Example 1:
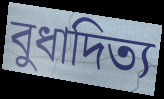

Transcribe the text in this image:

বুধাদিত্য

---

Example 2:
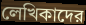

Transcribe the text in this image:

লেখিকাদের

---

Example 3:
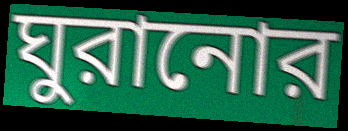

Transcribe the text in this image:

ঘুরানোর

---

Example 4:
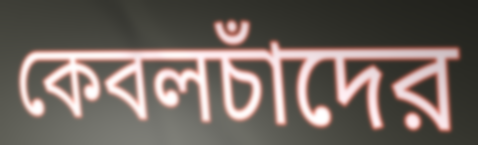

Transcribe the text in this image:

কেবলচাঁদের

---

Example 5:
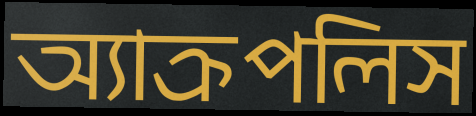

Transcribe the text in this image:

অ্যাক্রপলিস